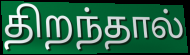
திறந்தால்